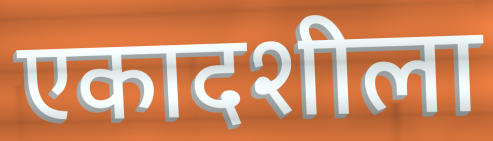
एकादशीला